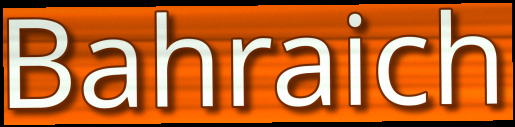
Bahraich